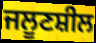
ਜਲੂਣਸ਼ੀਲ